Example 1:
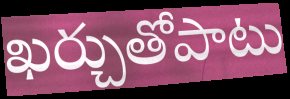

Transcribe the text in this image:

ఖర్చుతోపాటు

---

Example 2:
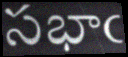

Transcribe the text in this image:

సభాఁ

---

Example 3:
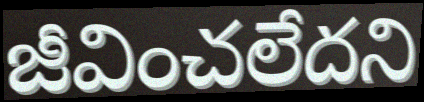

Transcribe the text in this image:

జీవించలేదని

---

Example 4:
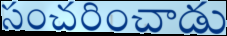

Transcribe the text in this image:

సంచరించాడు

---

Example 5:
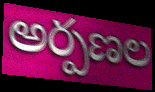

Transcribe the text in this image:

అర్పణల